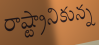
రాష్ట్రానికున్న